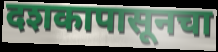
दशकापासूनचा